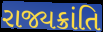
રાજ્યક્રાંતિ